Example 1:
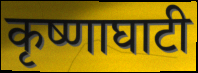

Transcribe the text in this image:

कृष्णाघाटी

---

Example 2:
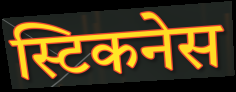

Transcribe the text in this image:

स्टिकनेस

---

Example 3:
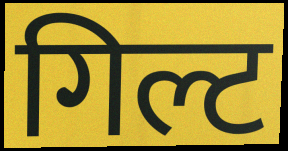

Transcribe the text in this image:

गिल्ट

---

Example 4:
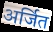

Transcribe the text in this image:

अर्जित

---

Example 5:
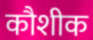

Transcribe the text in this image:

कौशीक